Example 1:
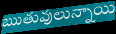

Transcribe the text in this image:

ఋతువులున్నాయి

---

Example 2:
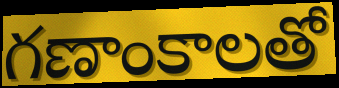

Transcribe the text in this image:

గణాంకాలతో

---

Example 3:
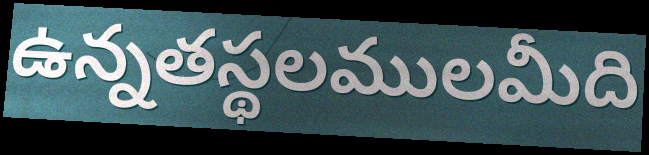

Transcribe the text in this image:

ఉన్నతస్థలములమీది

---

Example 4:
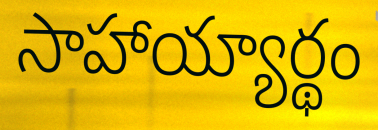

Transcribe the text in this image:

సాహాయ్యార్థం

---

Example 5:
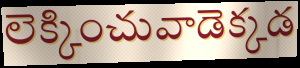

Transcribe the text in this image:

లెక్కించువాడెక్కడ